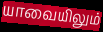
யாவையிலும்